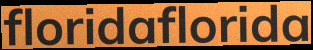
floridaflorida